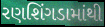
રણશિંગડામાંથી